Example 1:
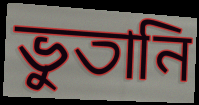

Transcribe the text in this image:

ভুতানি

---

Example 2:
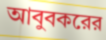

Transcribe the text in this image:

আবুবকরের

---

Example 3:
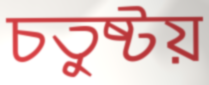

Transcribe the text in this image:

চতুষ্টয়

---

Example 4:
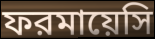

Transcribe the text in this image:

ফরমায়েসি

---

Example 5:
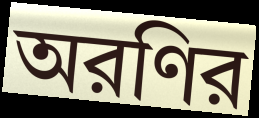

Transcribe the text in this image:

অরণির